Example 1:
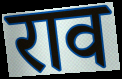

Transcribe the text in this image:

राव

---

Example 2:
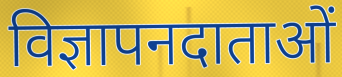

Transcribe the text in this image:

विज्ञापनदाताओं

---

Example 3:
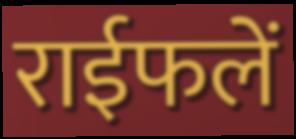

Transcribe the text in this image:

राईफलें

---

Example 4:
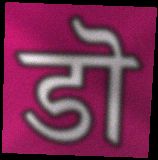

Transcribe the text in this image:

डॊ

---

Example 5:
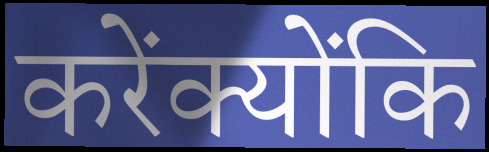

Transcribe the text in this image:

करेंक्योंकि